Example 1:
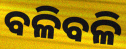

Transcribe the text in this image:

ବଳିବଳି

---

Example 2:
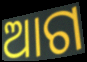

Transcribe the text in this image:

ଆଗ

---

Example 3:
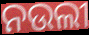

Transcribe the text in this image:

ନଉଲୀ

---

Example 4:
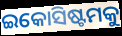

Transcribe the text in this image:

ଇକୋସିଷ୍ଟମକୁ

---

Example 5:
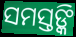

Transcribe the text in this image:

ସମସ୍ତଙ୍କି